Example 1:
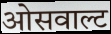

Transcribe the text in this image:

ओसवाल्ट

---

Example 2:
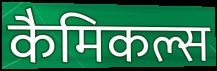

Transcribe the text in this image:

कैमिकल्स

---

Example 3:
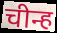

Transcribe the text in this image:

चीन्ह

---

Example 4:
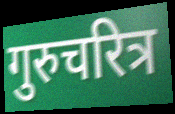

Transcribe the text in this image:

गुरुचरित्र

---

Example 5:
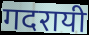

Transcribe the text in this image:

गदरायी